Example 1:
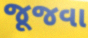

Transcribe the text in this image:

જૂજવા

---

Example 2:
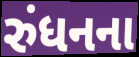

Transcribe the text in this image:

રુંધનના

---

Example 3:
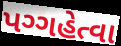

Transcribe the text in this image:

પગ્ગહેત્વા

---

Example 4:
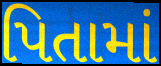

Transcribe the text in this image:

પિતામાં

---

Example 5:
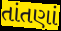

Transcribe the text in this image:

તાંતણાં